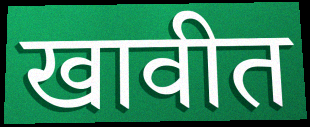
खावीत